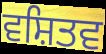
ਵਸ਼ਿਤਵ